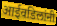
आईवडिलांनी